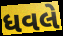
ધવલે